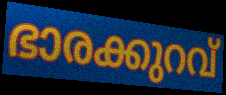
ഭാരക്കുറവ്